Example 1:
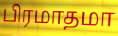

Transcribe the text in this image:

பிரமாதமா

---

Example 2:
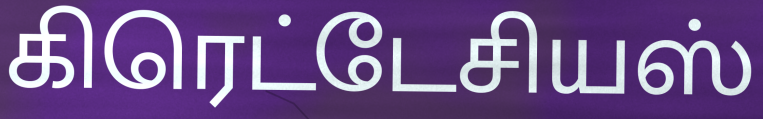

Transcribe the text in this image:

கிரெட்டேசியஸ்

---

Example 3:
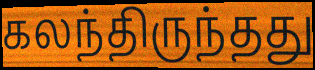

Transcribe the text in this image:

கலந்திருந்தது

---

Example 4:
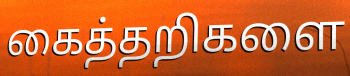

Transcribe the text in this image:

கைத்தறிகளை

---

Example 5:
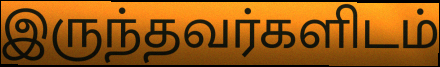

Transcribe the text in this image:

இருந்தவர்களிடம்